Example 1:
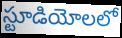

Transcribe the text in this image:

స్టూడియోలలో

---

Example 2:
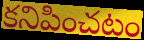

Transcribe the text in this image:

కనిపించటం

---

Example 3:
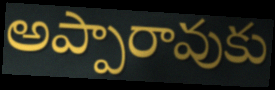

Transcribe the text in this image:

అప్పారావుకు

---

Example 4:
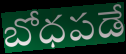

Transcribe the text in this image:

బోధపడే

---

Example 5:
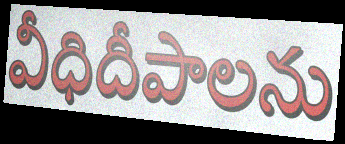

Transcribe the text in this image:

వీధిదీపాలను